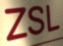
ZSL